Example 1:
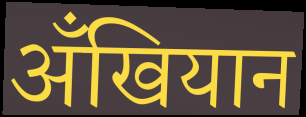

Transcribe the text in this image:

अँखियान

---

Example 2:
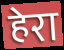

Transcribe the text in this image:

हेरा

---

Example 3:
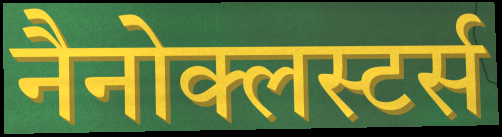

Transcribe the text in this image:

नैनोक्लस्टर्स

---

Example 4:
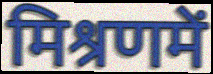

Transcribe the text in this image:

मिश्रणमें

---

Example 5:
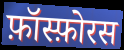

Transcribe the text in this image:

फ़ॉस्फ़ोरस